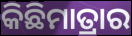
କିଛିମାତ୍ରାର